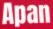
Apan